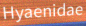
Hyaenidae